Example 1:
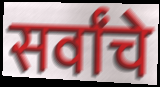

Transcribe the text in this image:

सर्वांचे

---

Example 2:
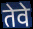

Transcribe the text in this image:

तेवे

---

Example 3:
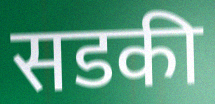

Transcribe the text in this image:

सडकी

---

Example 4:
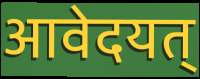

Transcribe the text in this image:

आवेदयत्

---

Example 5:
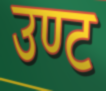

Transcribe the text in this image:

उण्ट